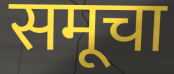
समूचा